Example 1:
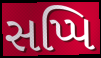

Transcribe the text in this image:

સપ્પિ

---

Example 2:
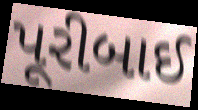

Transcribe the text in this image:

પૂરીબાઈ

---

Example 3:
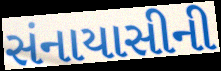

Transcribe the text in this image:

સંનાયાસીની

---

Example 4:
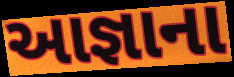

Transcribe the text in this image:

આજ્ઞાના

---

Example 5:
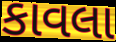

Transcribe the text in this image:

કાવલા